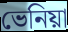
ভেনিয়া